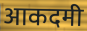
आकदमी